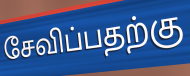
சேவிப்பதற்கு